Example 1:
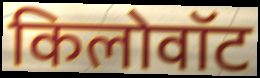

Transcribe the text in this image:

किलोवॉट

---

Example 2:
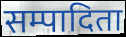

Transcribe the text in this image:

सम्पादिता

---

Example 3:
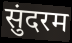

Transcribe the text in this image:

सुंदरम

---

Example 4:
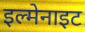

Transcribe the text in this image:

इल्मेनाइट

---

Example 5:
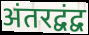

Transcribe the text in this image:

अंतरद्वंद्व